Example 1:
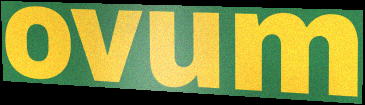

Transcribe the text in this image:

ovum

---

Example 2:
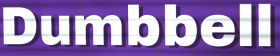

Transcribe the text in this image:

Dumbbell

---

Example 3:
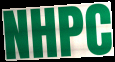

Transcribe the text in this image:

NHPC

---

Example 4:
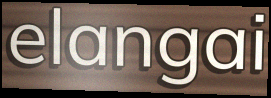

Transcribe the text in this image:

elangai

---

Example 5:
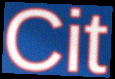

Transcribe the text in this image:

Cit